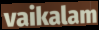
vaikalam